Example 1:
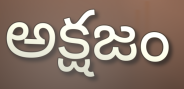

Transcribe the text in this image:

అక్షజం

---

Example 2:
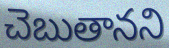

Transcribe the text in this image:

చెబుతానని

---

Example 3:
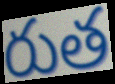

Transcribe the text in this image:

రుత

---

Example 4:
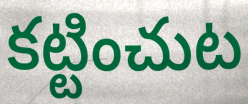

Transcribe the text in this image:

కట్టించుట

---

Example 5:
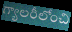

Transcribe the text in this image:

గ్యాలరీలోంచి